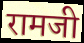
रामजी